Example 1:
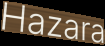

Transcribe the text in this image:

Hazara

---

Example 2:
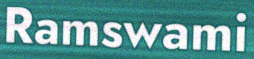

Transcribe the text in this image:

Ramswami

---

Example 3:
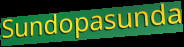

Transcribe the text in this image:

Sundopasunda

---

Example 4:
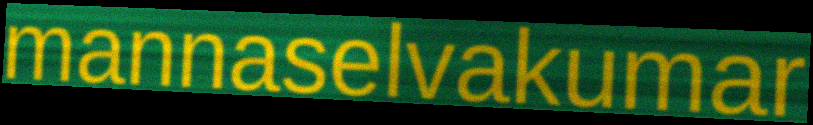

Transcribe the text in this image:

mannaselvakumar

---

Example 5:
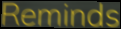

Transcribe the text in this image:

Reminds